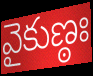
వైకుణ్ఠః